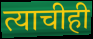
त्याचीही